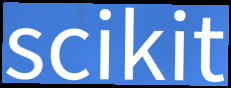
scikit